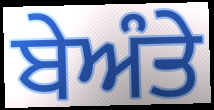
ਬੇਅੰਤੇ